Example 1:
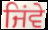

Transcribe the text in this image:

ਜਿਂਵੇ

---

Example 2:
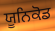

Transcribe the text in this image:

ਯੂਨਿਕੋਡ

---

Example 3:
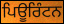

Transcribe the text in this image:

ਪਿਊਰਿੰਟਨ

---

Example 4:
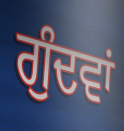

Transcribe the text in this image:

ਗੁੰਦਵਾਂ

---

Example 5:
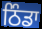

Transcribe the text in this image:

ਠਿੰਡਾ